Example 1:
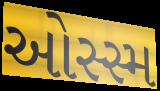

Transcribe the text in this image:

ઓસ્સ્મ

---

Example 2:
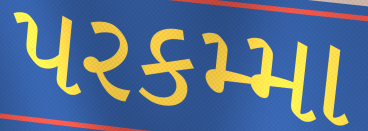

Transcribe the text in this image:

પરકમ્મા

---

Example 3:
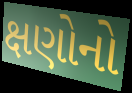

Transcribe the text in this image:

ક્ષણોનો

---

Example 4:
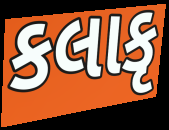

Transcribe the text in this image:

કલાકૃ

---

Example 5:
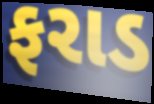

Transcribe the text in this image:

ફરાડ